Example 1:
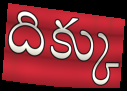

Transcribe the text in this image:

దిక్కు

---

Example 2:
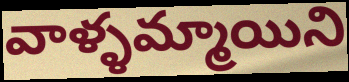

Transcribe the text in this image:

వాళ్ళమ్మాయిని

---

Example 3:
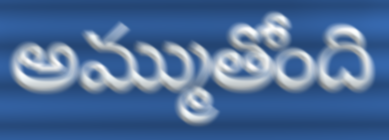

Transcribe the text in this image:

అమ్ముతోంది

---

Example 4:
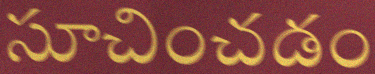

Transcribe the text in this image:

సూచించడం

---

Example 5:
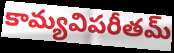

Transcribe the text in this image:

కామ్యవిపరీతమ్